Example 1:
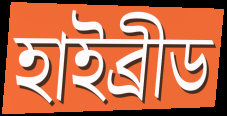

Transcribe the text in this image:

হাইব্ৰীড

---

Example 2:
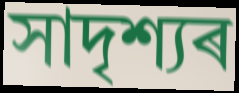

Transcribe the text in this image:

সাদৃশ্যৰ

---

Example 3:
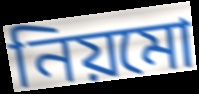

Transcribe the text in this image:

নিয়মো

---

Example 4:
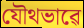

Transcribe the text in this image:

যৌথভাৱে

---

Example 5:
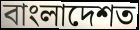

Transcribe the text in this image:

বাংলাদেশত